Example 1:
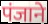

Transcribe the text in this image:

पंजाने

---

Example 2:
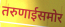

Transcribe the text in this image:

तरुणाईसमोर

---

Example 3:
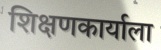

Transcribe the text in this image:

शिक्षणकार्याला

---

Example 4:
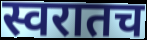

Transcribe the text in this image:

स्वरातच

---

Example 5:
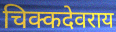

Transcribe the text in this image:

चिक्कदेवराय